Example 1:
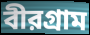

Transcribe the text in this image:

বীরগ্রাম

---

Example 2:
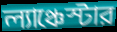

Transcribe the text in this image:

ল্যাঞ্চেস্টার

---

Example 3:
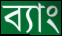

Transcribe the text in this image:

ব্যাং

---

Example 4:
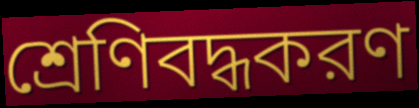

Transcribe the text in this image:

শ্রেণিবদ্ধকরণ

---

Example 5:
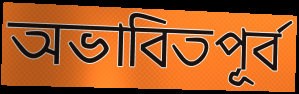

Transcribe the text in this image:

অভাবিতপূর্ব